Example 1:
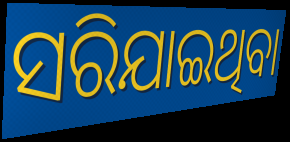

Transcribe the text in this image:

ସରିଯାଇଥିବା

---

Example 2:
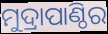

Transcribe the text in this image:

ମୁଦ୍ରାପାଣ୍ଠିର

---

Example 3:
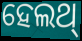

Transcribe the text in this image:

ହେଲଥ୍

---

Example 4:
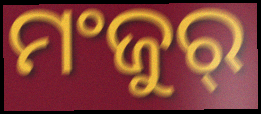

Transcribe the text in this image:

ମଂଜୁର୍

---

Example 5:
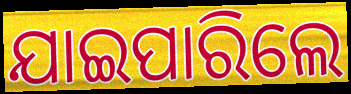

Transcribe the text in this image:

ଯାଇପାରିଲେ